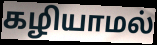
கழியாமல்